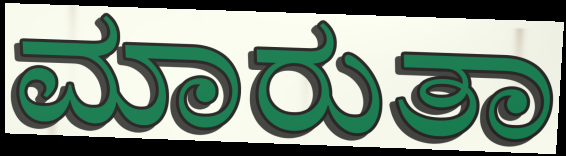
ಮಾರುತಾ